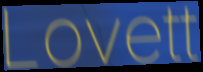
Lovett